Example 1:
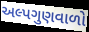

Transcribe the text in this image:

અલ્પગુણવાળો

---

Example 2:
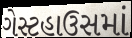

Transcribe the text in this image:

ગેસ્ટહાઉસમાં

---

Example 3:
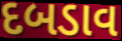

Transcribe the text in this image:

દબડાવ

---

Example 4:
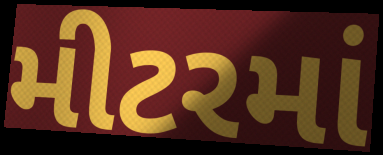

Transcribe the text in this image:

મીટરમાં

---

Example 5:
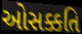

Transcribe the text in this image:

ઓસક્કતિ